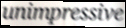
unimpressive